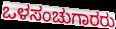
ಒಳಸಂಚುಗಾರರು